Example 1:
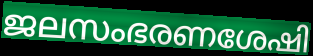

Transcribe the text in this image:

ജലസംഭരണശേഷി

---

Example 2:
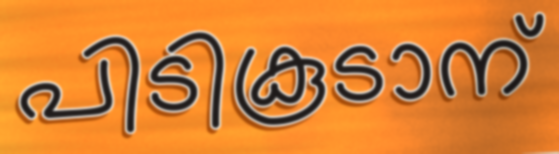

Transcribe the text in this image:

പിടികൂടാന്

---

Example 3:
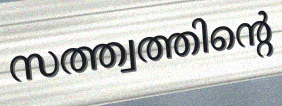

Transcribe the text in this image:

സത്ത്വത്തിന്റെ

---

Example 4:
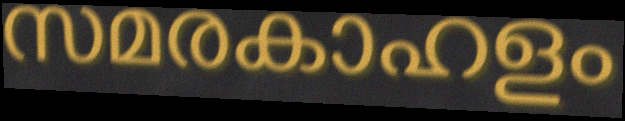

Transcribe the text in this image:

സമരകാഹളം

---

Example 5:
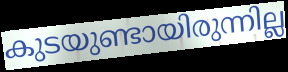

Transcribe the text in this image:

കുടയുണ്ടായിരുന്നില്ല